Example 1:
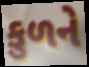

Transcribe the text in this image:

કુળને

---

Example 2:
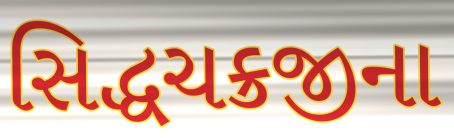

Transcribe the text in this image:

સિદ્ધચક્રજીના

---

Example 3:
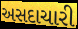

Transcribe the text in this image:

અસદાચારી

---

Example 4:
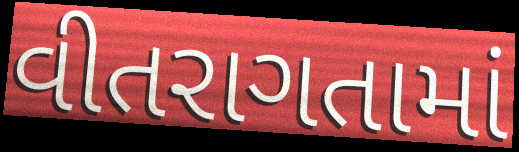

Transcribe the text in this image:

વીતરાગતામાં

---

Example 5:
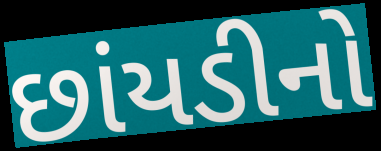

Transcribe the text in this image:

છાંયડીનો